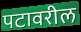
पटावरील